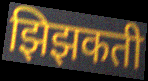
झिझकती